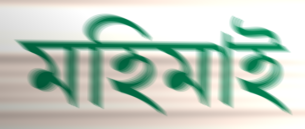
মহিমাই